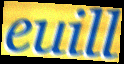
euill